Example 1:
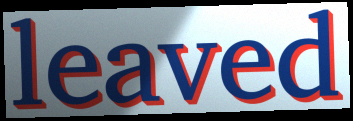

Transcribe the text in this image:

leaved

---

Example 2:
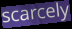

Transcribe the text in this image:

scarcely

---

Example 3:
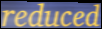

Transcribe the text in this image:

reduced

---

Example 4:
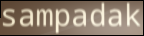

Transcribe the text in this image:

sampadak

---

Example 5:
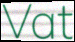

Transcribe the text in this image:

Vat